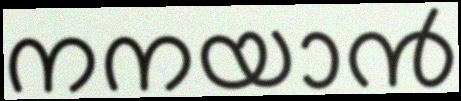
നനയാൻ